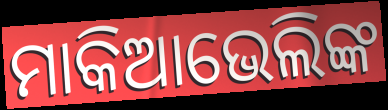
ମାକିଆଭେଲିଙ୍କ